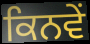
ਕਿਨਵੇਂ